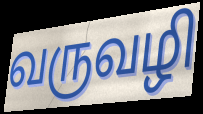
வருவழி